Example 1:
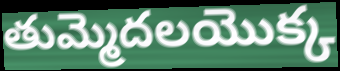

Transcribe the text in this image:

తుమ్మెదలయొక్క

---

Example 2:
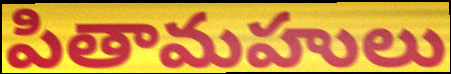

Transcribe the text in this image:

పితామహులు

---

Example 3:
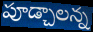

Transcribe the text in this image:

పూడ్చాలన్న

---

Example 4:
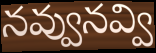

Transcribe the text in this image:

నవ్వునవ్వి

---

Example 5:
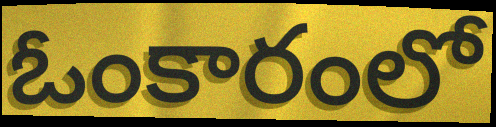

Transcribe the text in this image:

ఓంకారంలో